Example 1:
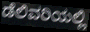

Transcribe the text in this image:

ಡೆಲಿವರಿಯಲ್ಲಿ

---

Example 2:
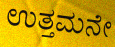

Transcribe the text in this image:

ಉತ್ತಮನೇ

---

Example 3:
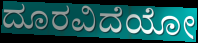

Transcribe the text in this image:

ದೂರವಿದೆಯೋ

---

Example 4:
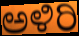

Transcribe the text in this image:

ಅಳಿರಿ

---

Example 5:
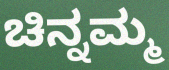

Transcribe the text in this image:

ಚಿನ್ನಮ್ಮ